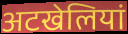
अटखेलियां